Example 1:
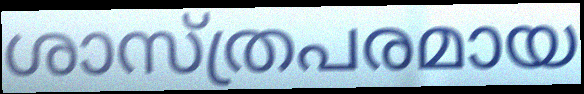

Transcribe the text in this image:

ശാസ്ത്രപരമായ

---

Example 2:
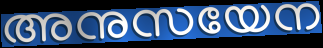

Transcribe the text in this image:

അനുസയേന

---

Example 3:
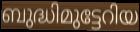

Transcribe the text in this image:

ബുദ്ധിമുട്ടേറിയ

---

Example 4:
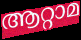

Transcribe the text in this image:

ആറ്റാമ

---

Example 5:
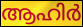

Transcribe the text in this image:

ആഹിർ